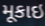
મૂકાઇ